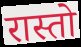
रास्तो